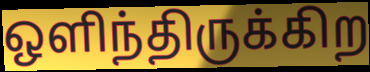
ஒளிந்திருக்கிற